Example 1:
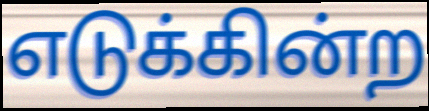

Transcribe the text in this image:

எடுக்கின்ற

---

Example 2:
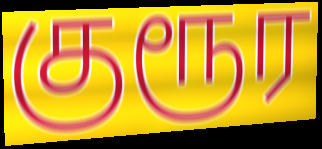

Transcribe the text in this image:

குரூர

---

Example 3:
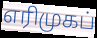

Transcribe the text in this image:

எரிமுகப்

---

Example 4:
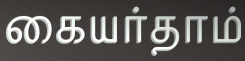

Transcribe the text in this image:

கையர்தாம்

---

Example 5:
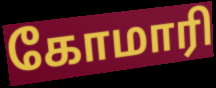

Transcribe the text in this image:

கோமாரி